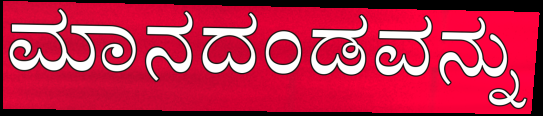
ಮಾನದಂಡವನ್ನು